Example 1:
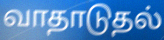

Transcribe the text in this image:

வாதாடுதல்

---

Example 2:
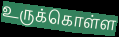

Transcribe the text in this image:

உருக்கொள்ள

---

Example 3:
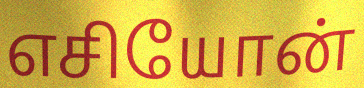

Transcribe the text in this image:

எசியோன்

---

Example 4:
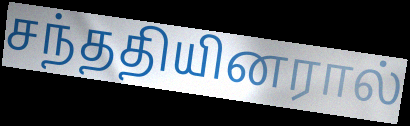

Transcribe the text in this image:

சந்ததியினரால்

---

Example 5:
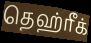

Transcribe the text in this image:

தெஹ்ரீக்